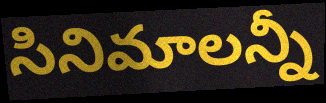
సినిమాలన్నీ